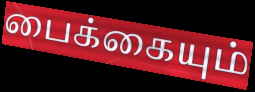
பைக்கையும்